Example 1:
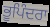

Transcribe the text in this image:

ਭੂਪਿੰਦਰਾ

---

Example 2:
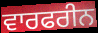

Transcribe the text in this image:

ਵਾਰਫਰੀਨ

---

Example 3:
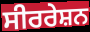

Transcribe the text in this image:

ਸੀਰਰੇਸ਼ਨ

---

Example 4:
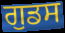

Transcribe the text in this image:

ਗੁਡਸ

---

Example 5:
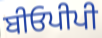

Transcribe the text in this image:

ਬੀਓਪੀਪੀ